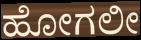
ಹೋಗಲೀ